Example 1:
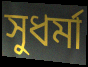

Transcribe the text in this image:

সুধর্মা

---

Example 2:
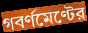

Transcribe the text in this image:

গবর্ণমেণ্টের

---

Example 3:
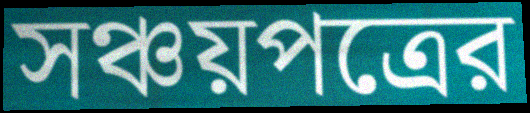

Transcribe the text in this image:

সঞ্চয়পত্রের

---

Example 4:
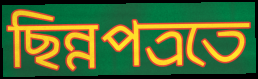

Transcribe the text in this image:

ছিন্নপত্রতে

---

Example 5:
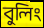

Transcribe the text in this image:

বুলিং